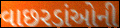
વાછરડાંઓની